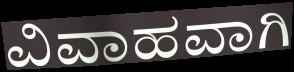
ವಿವಾಹವಾಗಿ